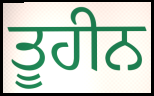
ਤੂਹੀਨ